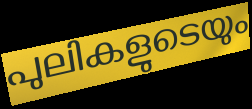
പുലികളുടെയും